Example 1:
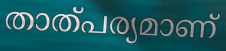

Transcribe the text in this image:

താത്പര്യമാണ്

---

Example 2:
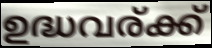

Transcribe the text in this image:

ഉദ്ധവര്ക്ക്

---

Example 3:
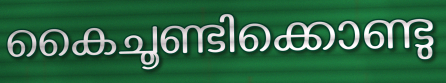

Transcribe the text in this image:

കൈചൂണ്ടിക്കൊണ്ടു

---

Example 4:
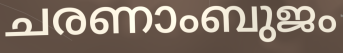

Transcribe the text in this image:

ചരണാംബുജം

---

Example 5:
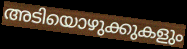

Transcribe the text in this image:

അടിയൊഴുക്കുകളും